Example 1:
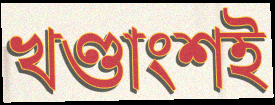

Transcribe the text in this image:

খণ্ডাংশই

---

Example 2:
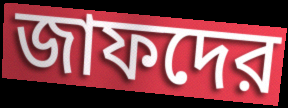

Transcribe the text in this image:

জাফদের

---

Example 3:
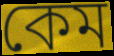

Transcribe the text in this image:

কেম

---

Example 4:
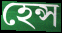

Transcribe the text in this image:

হেন্স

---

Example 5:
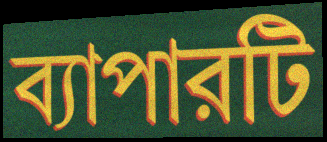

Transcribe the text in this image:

ব্যাপারটি